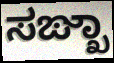
ಸಙ್ಖಾ